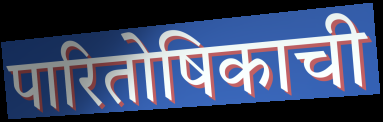
पारितोषिकाची